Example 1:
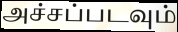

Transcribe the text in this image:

அச்சப்படவும்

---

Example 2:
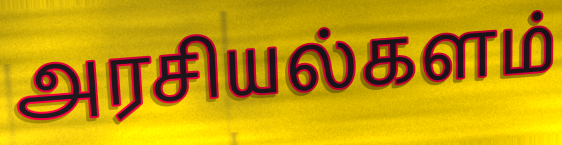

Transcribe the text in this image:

அரசியல்களம்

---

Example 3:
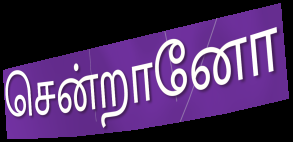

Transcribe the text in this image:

சென்றானோ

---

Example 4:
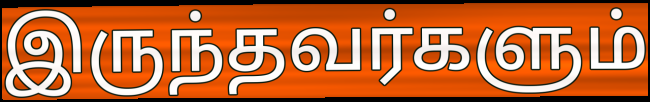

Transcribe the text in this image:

இருந்தவர்களும்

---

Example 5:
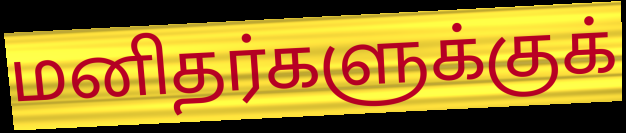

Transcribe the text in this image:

மனிதர்களுக்குக்